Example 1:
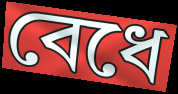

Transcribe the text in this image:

বেধে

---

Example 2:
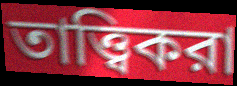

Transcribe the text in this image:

তাত্ত্বিকরা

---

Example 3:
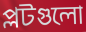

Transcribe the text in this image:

প্লটগুলো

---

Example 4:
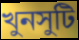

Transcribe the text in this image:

খুনসুটি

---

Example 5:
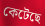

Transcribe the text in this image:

কেটেছে